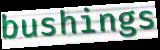
bushings